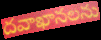
దవాఖానలను